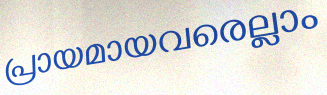
പ്രായമായവരെല്ലാം